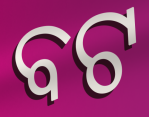
ବଟ